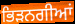
ਭਿੜਨਗੀਆਂ